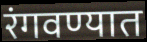
रंगवण्यात